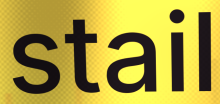
stail